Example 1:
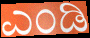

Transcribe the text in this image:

ಎಂಡಿ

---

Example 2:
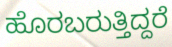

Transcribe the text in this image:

ಹೊರಬರುತ್ತಿದ್ದರೆ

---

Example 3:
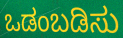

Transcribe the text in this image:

ಒಡಂಬಡಿಸು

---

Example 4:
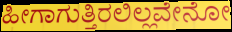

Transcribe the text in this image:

ಹೀಗಾಗುತ್ತಿರಲಿಲ್ಲವೇನೋ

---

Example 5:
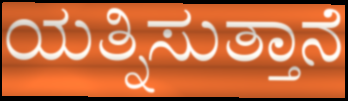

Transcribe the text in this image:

ಯತ್ನಿಸುತ್ತಾನೆ